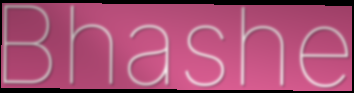
Bhashe